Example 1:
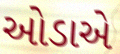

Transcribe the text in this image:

ઓડાએ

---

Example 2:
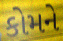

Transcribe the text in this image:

કોમને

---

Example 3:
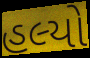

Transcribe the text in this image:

હલ્યો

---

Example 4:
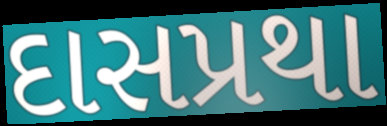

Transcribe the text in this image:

દાસપ્રથા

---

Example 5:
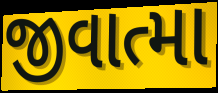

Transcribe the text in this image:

જીવાત્મા